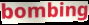
bombing